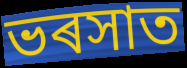
ভৰসাত